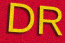
DR